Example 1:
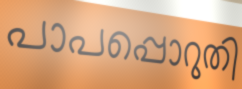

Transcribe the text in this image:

പാപപ്പൊറുതി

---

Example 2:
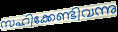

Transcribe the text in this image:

സഹിക്കേണ്ടിവന്നു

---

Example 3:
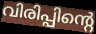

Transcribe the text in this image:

വിരിപ്പിന്റെ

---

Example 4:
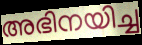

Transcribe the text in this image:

അഭിനയിച്ച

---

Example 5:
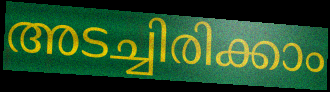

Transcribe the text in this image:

അടച്ചിരിക്കാം